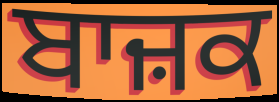
ਬਾਜ਼ਕ